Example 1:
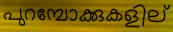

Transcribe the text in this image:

പുറമ്പോക്കുകളില്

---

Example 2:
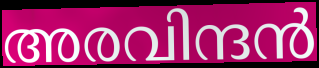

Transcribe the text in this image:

അരവിന്ദൻ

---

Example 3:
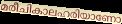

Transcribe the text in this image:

മരീചികാലഹരിയാണോ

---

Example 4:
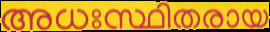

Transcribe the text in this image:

അധഃസ്ഥിതരായ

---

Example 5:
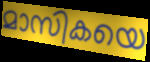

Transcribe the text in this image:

മാസികയെ